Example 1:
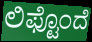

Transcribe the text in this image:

ಲಿಫ್ಟೊಂದೆ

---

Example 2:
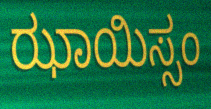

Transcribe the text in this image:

ಝಾಯಿಸ್ಸಂ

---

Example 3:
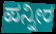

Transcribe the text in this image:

ಪನ್ನೀರ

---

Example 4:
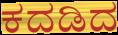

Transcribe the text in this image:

ಕದಡಿದ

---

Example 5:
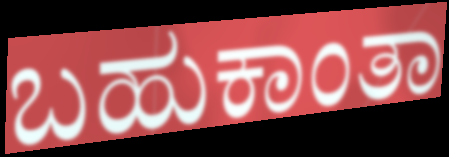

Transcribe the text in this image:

ಬಹುಕಾಂತಾ